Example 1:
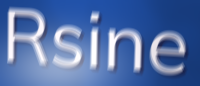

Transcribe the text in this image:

Rsine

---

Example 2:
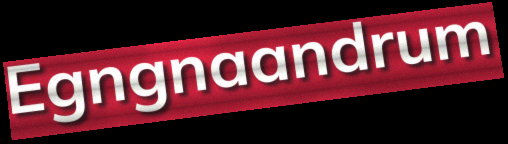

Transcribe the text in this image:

Egngnaandrum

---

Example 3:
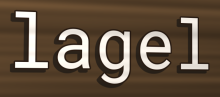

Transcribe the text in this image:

lagel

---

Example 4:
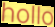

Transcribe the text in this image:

hollo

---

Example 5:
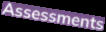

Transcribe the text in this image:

Assessments